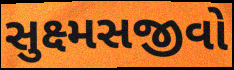
સુક્ષ્મસજીવો